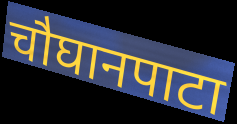
चौघानपाटा